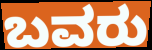
ಬವರು